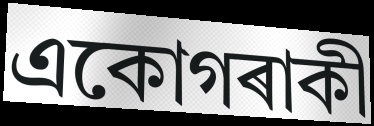
একোগৰাকী